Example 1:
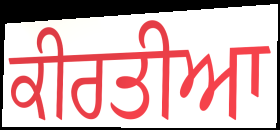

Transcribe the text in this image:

ਕੀਰਤੀਆ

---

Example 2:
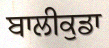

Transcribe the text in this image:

ਬਾਲੀਕੁਡਾ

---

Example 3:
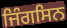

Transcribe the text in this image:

ਜਿੰਗਸਿਨ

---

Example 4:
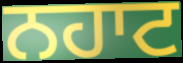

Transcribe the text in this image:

ਨਹਾਟ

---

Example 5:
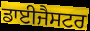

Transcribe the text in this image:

ਡਾਈਜੈਸਟਰ